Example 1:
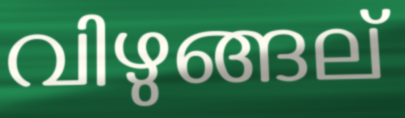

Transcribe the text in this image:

വിഴുങ്ങല്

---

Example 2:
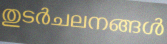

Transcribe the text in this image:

തുടർചലനങ്ങൾ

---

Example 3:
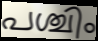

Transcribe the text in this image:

പശ്ചിം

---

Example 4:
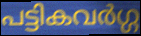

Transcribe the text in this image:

പട്ടികവർഗ്ഗ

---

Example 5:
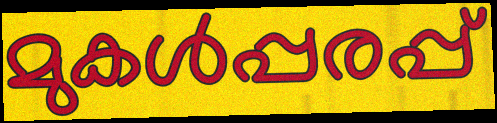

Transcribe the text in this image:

മുകൾപ്പരപ്പ്